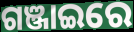
ଗଞ୍ଜାଇରେ